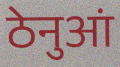
ठेनुआं